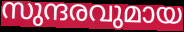
സുന്ദരവുമായ